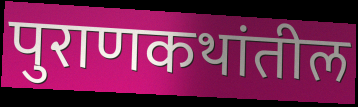
पुराणकथांतील